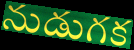
నుడుగక